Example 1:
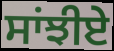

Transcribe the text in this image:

ਸਾਂਝੀਏ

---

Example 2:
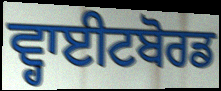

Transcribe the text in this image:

ਵ੍ਹਾਈਟਬੋਰਡ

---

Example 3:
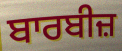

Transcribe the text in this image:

ਬਾਰਬੀਜ਼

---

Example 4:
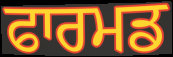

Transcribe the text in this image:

ਫਾਰਮਡ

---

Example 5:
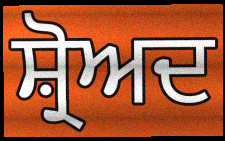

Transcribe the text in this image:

ਸ਼੍ਰੋਅਦ